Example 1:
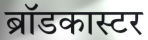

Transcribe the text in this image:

ब्रॉडकास्टर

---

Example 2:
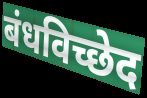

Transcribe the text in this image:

बंधविच्छेद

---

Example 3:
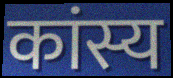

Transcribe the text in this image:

कांस्‍य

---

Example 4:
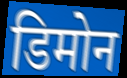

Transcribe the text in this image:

डिमोन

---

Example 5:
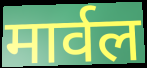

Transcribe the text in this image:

मार्वल